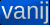
vanij